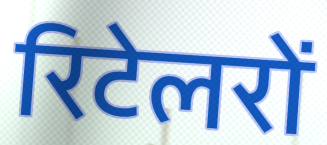
रिटेलरों